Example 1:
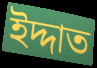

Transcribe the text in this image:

ইদ্দাত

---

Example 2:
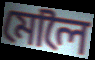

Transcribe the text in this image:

মোলৈ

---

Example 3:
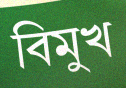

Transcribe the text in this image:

বিমুখ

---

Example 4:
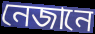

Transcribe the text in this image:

নেজানে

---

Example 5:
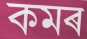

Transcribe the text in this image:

কমৰ